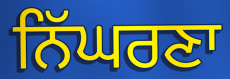
ਨਿੱਘਰਣਾ